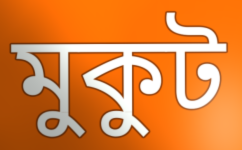
মুকুট